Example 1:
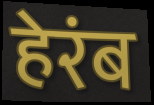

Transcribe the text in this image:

हेरंब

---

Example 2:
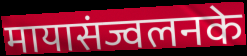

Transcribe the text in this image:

मायासंज्वलनके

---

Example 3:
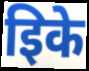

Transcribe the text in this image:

इिके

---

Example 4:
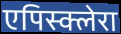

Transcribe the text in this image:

एपिस्क्लेरा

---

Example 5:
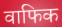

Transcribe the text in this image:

वाफिक